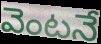
వెంటనే